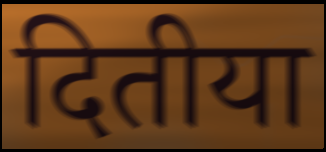
दितीया